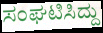
ಸಂಘಟಿಸಿದ್ದು